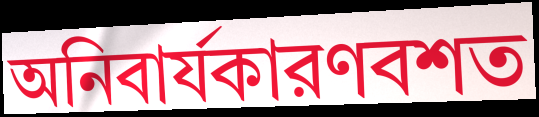
অনিবার্যকারণবশত